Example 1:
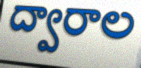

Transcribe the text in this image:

ద్వారాల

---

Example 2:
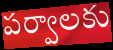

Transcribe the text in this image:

పర్వాలకు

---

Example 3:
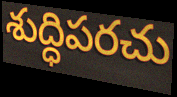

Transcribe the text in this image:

శుద్ధిపరచు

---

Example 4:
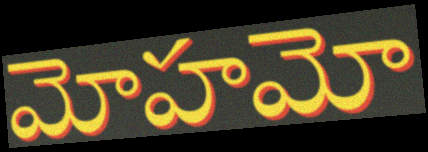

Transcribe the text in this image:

మోహమో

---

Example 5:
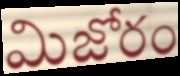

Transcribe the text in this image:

మిజోరం